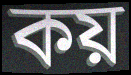
কয়